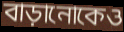
বাড়ানোকেও